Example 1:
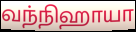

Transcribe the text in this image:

வந்நிஹாயா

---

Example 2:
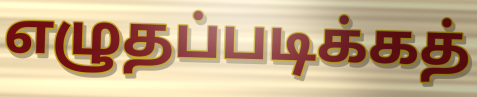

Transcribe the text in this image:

எழுதப்படிக்கத்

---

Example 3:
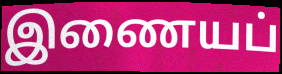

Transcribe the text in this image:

இணையப்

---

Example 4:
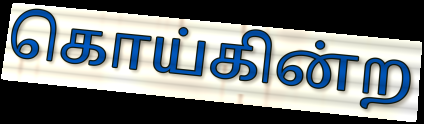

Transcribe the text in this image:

கொய்கின்ற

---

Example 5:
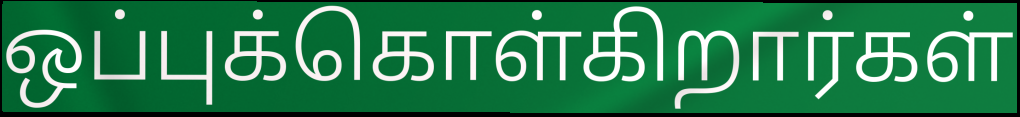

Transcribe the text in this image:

ஒப்புக்கொள்கிறார்கள்